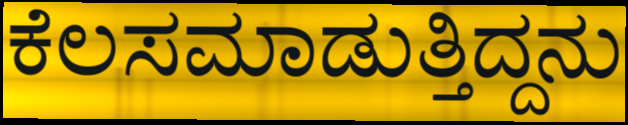
ಕೆಲಸಮಾಡುತ್ತಿದ್ದನು